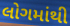
લોગમાંથી